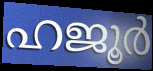
ഹജൂർ